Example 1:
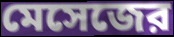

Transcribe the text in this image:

মেসেজের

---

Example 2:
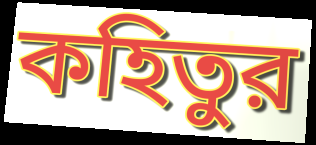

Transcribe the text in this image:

কহিতুর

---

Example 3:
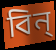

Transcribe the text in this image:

বিন্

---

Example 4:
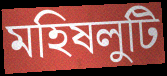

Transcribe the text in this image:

মহিষলুটি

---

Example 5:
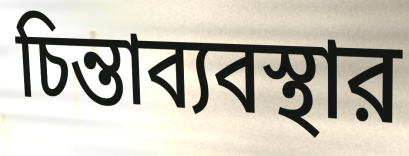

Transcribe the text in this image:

চিন্তাব্যবস্থার